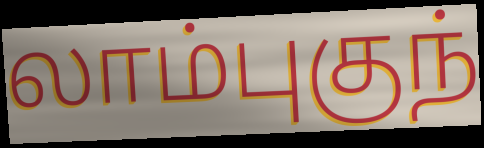
லாம்புகுந்